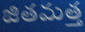
జితమత్త